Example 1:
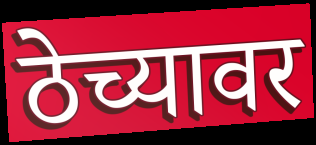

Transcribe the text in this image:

ठेच्यावर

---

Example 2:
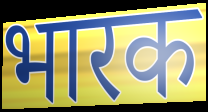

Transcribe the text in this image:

भारक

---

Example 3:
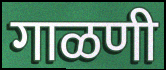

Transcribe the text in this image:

गाळणी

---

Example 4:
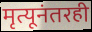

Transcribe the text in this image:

मृत्यूनंतरही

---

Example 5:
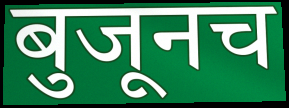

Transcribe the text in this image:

बुजूनच